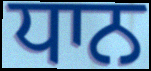
ਧਾਨ